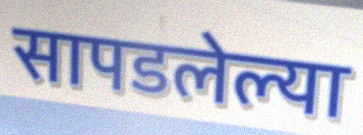
सापडलेल्या